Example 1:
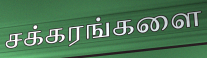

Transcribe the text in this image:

சக்கரங்களை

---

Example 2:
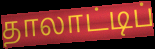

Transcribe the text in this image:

தாலாட்டிப்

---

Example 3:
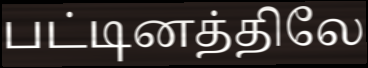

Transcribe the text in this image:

பட்டினத்திலே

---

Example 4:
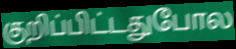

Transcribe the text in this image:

குறிப்பிட்டதுபோல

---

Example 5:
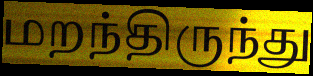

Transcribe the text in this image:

மறந்திருந்து